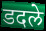
डदले